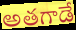
అతగాడే